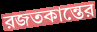
রজতকান্তের